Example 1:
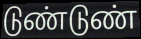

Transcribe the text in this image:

டுண்டுண்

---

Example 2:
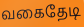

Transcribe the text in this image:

வகைதேடி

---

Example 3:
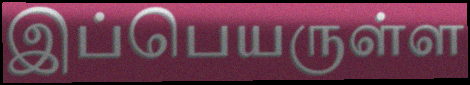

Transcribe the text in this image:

இப்பெயருள்ள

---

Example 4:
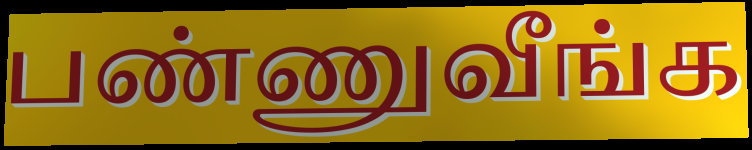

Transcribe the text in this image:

பண்ணுவீங்க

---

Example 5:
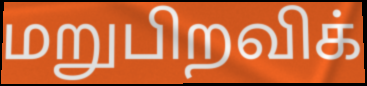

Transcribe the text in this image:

மறுபிறவிக்